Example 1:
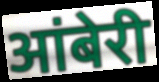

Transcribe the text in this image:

आंबेरी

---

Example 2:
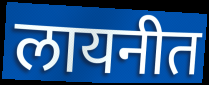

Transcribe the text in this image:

लायनीत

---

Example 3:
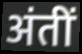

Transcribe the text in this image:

अंतीं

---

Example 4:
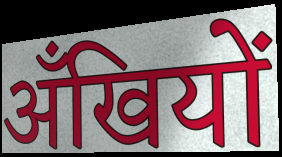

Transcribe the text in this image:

अँखियों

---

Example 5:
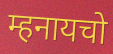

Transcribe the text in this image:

म्हनायचो